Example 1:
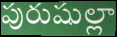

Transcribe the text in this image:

పురుషుల్లా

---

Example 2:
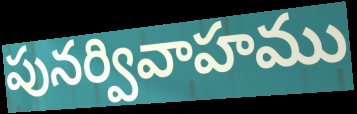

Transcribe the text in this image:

పునర్వివాహము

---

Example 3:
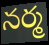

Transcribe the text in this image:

నర్మ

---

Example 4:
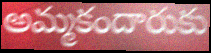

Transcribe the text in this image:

అమ్మకందారుకు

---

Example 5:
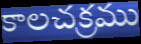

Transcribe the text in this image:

కాలచక్రము